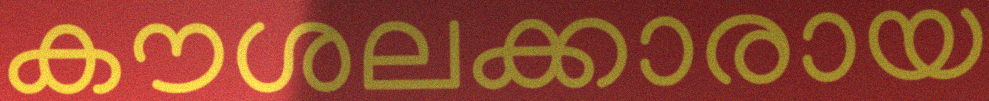
കൗശലക്കാരായ